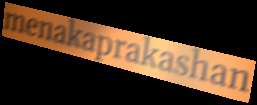
menakaprakashan